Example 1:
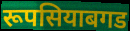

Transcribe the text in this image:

रूपसियाबगड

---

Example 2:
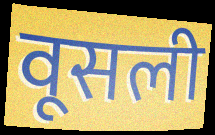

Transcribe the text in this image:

वूसली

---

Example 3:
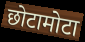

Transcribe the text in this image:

छोटामोटा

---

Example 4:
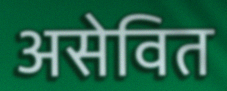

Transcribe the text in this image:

असेवित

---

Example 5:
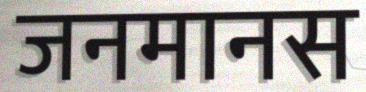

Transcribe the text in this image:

जनमानस